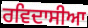
ਰਵਿਦਾਸੀਆ